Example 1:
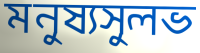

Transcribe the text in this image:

মনুষ্যসুলভ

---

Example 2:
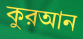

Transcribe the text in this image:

কুরআন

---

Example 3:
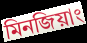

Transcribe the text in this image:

মিনজিয়াং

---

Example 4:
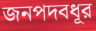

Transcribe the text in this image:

জনপদবধূর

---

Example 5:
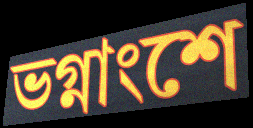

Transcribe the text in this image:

ভগ্নাংশে